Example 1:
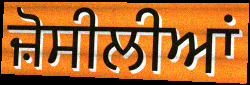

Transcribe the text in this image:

ਜ਼ੋਸੀਲੀਆਂ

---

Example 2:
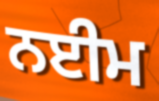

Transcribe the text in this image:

ਨਈਮ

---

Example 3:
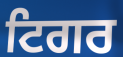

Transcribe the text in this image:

ਟਿਗਰ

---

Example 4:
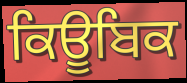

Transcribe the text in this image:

ਕਿਊਬਿਕ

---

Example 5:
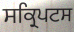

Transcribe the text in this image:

ਸਕ੍ਰਿਪਟਸ